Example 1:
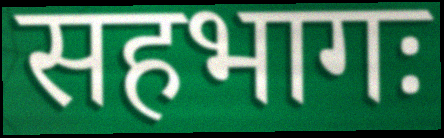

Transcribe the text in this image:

सहभागः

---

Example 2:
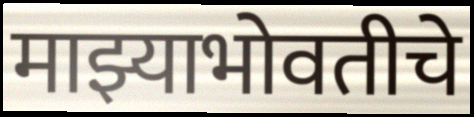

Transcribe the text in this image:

माझ्याभोवतीचे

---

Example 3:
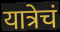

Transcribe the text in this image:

यात्रेचं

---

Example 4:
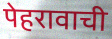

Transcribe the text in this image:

पेहरावाची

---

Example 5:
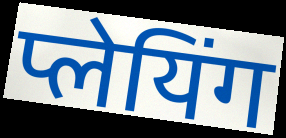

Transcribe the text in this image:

प्लेयिंग